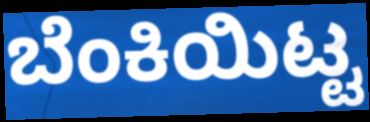
ಬೆಂಕಿಯಿಟ್ಟ